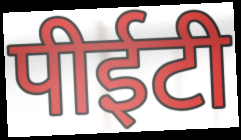
पीईटी